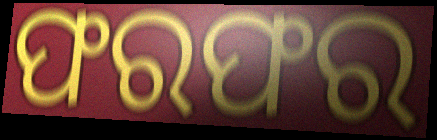
ଫରଫର